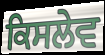
ਕਿਸਲੇਵ